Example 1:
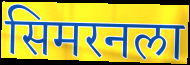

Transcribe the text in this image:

सिमरनला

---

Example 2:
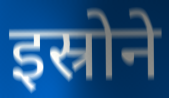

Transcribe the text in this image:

इस्रोने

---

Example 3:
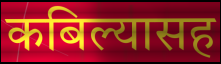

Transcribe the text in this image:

कबिल्यासह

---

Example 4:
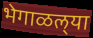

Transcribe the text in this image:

भेगाळल्या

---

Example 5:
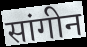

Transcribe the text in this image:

सांगीन